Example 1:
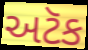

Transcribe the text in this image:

અટૅક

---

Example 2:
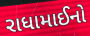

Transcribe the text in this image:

રાધામાઈનો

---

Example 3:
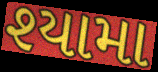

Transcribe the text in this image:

શ્યામા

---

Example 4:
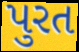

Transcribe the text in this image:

પુરત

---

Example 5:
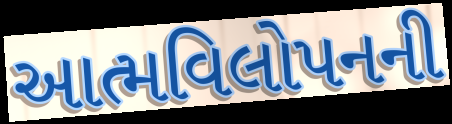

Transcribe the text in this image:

આત્મવિલોપનની